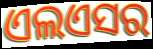
ଏଲଏସର